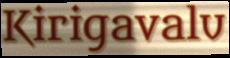
Kirigavalu